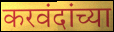
करवंदांच्या